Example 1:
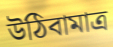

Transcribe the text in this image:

উঠিবামাত্র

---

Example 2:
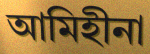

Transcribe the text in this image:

আমিহীনা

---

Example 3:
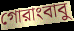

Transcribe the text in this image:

গোরাংবাবু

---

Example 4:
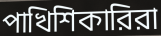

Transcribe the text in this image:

পাখিশিকারিরা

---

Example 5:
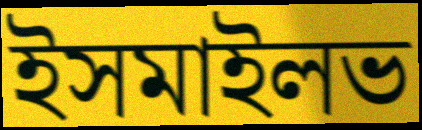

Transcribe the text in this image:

ইসমাইলভ